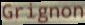
Grignon